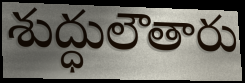
శుద్ధులౌతారు